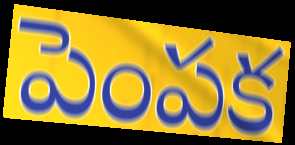
పెంపక